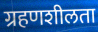
ग्रहणशीलता